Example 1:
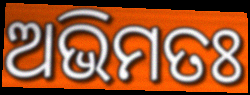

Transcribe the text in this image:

ଅଭିମତଃ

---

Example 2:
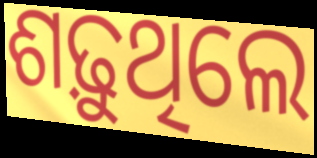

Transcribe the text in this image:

ଶଢ଼ୁଥିଲେ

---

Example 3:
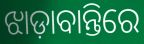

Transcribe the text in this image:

ଝାଡ଼ାବାନ୍ତିରେ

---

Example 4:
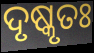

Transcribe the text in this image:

ଦୃଷ୍କୃତଃ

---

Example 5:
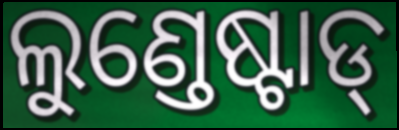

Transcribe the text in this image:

ଲୁଣ୍ଡେଷ୍ଟାଡ୍